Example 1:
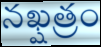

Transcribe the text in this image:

నఖ్షత్రం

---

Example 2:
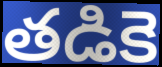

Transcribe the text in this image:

తడికె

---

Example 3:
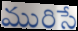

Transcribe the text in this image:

మురిసే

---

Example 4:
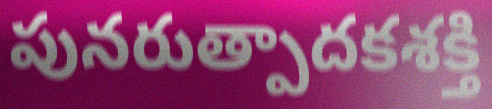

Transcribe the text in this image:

పునరుత్పాదకశక్తి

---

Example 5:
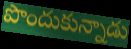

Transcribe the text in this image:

పొందుకున్నాడు